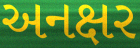
અનક્ષર